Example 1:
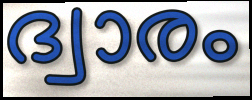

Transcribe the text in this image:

ദ്വാരം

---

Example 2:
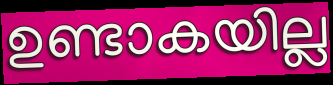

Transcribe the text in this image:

ഉണ്ടാകയില്ല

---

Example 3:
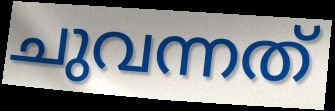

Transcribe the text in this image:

ചുവന്നത്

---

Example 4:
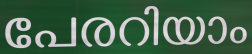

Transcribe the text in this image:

പേരറിയാം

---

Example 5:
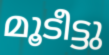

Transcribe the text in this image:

മൂടീട്ടു